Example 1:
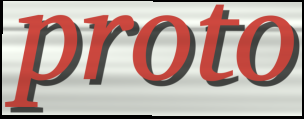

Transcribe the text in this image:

proto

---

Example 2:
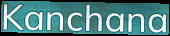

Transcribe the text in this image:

Kanchana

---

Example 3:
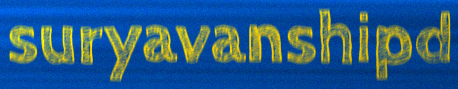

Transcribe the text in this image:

suryavanshipd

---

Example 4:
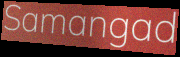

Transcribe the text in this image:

Samangad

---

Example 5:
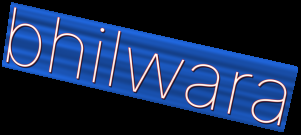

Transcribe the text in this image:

bhilwara